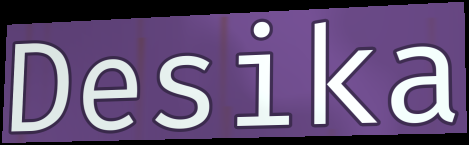
Desika